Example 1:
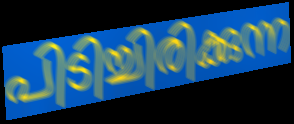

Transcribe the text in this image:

പിടിച്ചിരിക്കുന്ന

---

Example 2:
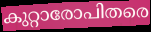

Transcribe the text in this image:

കുറ്റാരോപിതരെ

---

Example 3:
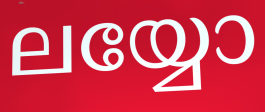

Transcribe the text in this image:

ലയ്യോ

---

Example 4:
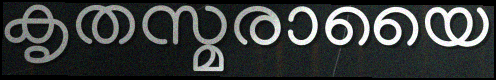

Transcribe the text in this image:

കൃതസ്മരായൈ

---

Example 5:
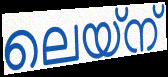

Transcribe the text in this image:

ലെയ്ന്